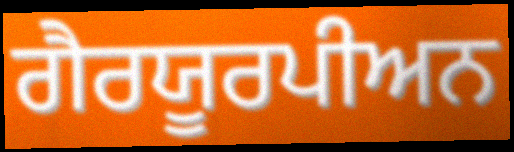
ਗੈਰਯੂਰਪੀਅਨ